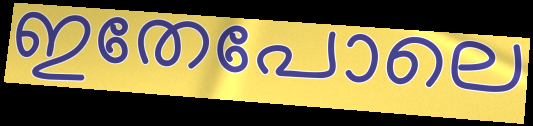
ഇതേപോലെ